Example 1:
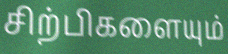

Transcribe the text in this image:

சிற்பிகளையும்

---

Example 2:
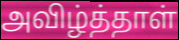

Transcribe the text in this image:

அவிழ்த்தாள்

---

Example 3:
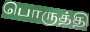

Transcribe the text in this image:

பொருத்தி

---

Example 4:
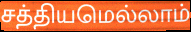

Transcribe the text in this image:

சத்தியமெல்லாம்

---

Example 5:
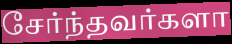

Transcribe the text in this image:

சேர்ந்தவர்களா